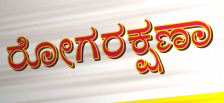
ರೋಗರಕ್ಷಣಾ